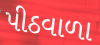
પીઠવાળા